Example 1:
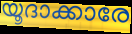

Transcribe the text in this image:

യൂദാക്കാരേ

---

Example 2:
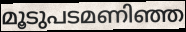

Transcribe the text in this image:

മൂടുപടമണിഞ്ഞ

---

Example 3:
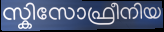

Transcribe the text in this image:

സ്കിസോഫ്രീനിയ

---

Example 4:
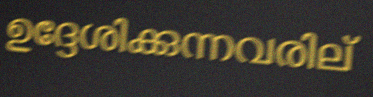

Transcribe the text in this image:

ഉദ്ദേശിക്കുന്നവരില്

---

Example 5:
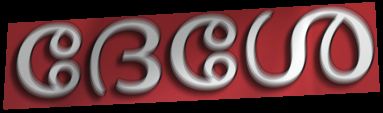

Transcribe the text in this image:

ദേശേ